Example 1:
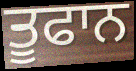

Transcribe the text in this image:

ਤੂਫਾਨ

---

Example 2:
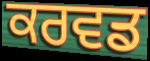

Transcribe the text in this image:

ਕਰਵਡ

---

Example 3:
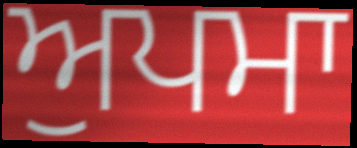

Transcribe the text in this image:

ਅੁਪਮਾ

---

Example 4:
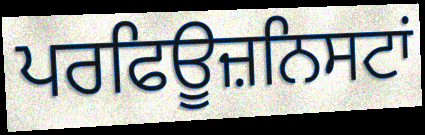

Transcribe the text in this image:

ਪਰਫਿਊਜ਼ਨਿਸਟਾਂ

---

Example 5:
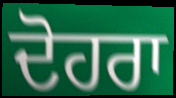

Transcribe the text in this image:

ਦੋਹਰਾ